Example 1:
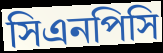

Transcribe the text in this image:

সিএনপিসি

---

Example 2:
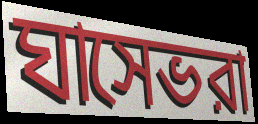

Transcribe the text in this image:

ঘাসেভরা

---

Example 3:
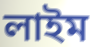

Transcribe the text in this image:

লাইম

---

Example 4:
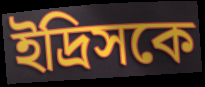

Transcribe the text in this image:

ইদ্রিসকে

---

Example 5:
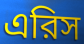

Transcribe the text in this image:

এরিস